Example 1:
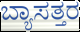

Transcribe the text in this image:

ಬ್ಯಾಸತ್ತರ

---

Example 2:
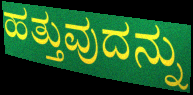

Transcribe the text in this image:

ಹತ್ತುವುದನ್ನು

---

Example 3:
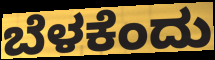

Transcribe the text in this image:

ಬೆಳಕೆಂದು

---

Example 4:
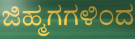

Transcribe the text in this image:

ಜಿಹ್ಮಗಗಳಿಂದ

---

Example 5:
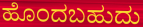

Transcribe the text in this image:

ಹೊಂದಬಹುದು